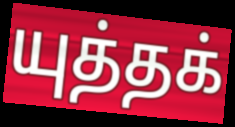
யுத்தக்